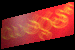
యితర్లతో